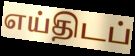
எய்திடப்